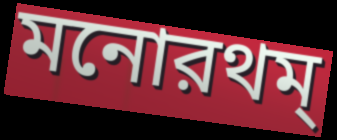
মনোরথম্